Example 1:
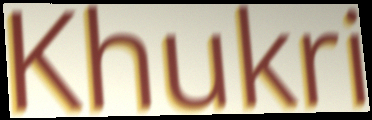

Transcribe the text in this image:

Khukri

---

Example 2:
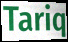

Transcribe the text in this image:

Tariq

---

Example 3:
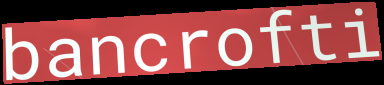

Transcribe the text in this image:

bancrofti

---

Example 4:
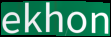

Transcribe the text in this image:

ekhon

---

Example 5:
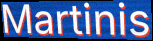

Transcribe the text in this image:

Martinis